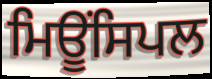
ਮਿਊਂਸਿਪਲ